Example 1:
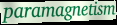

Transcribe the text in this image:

paramagnetism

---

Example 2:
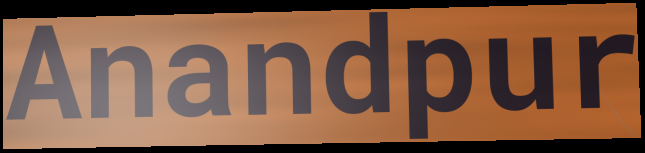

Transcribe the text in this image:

Anandpur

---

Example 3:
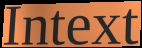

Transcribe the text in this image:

Intext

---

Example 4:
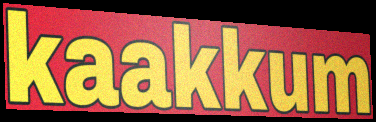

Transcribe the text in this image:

kaakkum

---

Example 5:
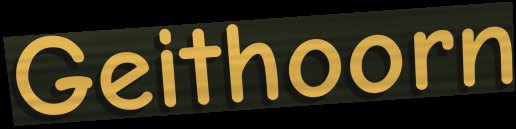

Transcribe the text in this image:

Geithoorn